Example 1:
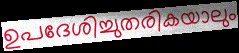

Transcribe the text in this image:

ഉപദേശിച്ചുതരികയാലും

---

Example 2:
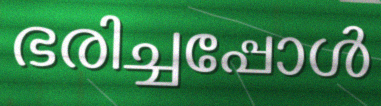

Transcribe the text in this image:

ഭരിച്ചപ്പോൾ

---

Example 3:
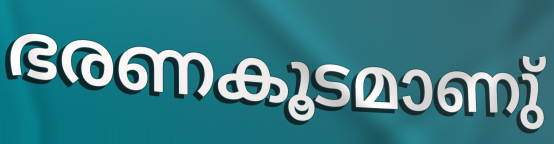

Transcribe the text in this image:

ഭരണകൂടമാണു്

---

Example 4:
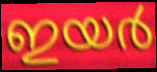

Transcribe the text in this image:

ഇയർ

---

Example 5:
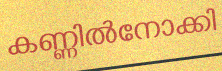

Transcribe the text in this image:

കണ്ണിൽനോക്കി